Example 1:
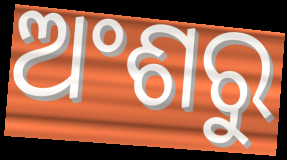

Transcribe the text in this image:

ଅଂଶରୁ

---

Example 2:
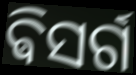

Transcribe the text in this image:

ଵିସର୍ଗ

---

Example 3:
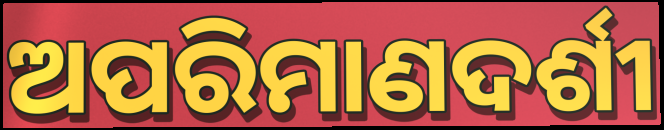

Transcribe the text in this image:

ଅପରିମାଣଦର୍ଶୀ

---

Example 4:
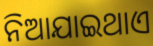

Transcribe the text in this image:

ନିଆଯାଇଥାଏ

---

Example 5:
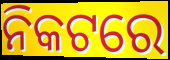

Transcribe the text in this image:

ନିକଟରେ